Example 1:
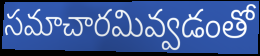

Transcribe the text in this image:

సమాచారమివ్వడంతో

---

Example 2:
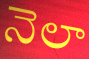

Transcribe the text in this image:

నెలా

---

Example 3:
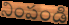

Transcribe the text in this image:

నింపండి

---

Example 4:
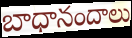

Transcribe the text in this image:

బాధానందాలు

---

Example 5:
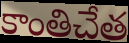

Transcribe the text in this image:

కాంతిచేత